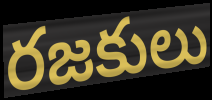
రజకులు